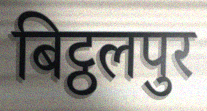
बिट्ठलपुर